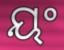
ୟଂ